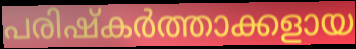
പരിഷ്കർത്താക്കളായ